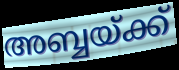
അബ്ബയ്ക്ക്